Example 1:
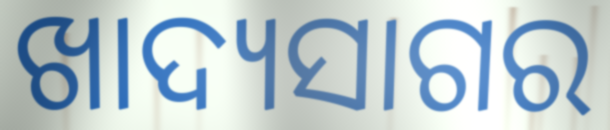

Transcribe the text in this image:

ଖାଦ୍ୟସାଗର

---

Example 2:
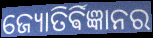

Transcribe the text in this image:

ଜ୍ୟୋତିର୍ଵିଜ୍ଞାନର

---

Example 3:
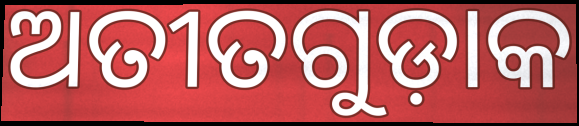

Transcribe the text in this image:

ଅତୀତଗୁଡ଼ାକ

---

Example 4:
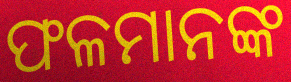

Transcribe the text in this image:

ଫଳମାନଙ୍କ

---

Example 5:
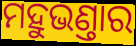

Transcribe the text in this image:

ମହୁଭଣ୍ତାର